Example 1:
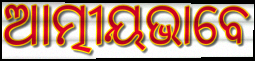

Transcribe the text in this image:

ଆତ୍ମୀୟଭାବେ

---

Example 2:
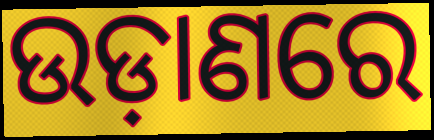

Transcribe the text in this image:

ଉଡ଼ାଣରେ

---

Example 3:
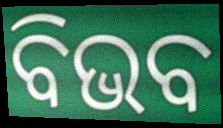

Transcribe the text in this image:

ବିଭବ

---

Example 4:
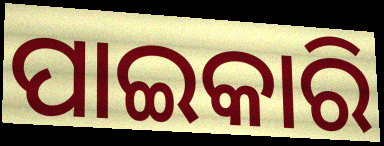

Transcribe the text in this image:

ପାଇକାରି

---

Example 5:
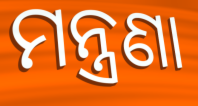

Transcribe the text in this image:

ମନ୍ତ୍ରଣା